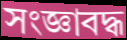
সংজ্ঞাবদ্ধ